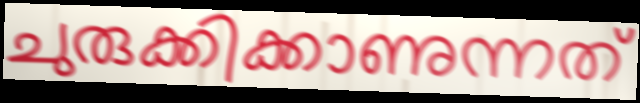
ചുരുക്കിക്കാണുന്നത്